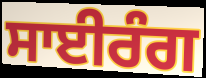
ਸਾਈਰੰਗ